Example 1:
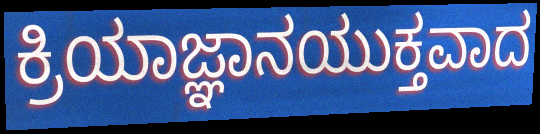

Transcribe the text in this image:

ಕ್ರಿಯಾಜ್ಞಾನಯುಕ್ತವಾದ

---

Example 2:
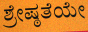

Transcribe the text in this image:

ಶ್ರೇಷ್ಠತೆಯೇ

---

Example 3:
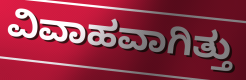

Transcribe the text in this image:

ವಿವಾಹವಾಗಿತ್ತು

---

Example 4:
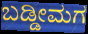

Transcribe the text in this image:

ಬಡ್ಡೀಮಗ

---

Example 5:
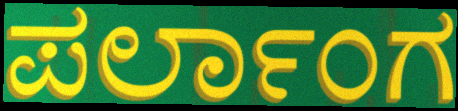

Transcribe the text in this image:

ಪರ್ಲಾಂಗ